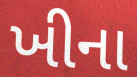
ખીના